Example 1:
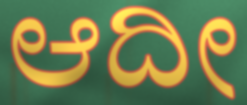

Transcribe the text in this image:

ಆದೀ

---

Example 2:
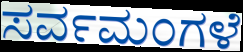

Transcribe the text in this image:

ಸರ್ವಮಂಗಳೆ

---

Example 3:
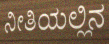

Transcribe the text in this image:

ನೀತಿಯಲ್ಲಿನ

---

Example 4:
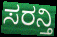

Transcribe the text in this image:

ಸರನ್ತಿ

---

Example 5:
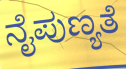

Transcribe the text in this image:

ನೈಪುಣ್ಯತೆ